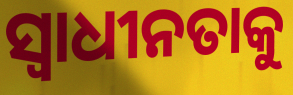
ସ୍ୱାଧୀନତାକୁ